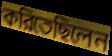
করিতেছিলেন